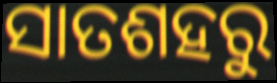
ସାତଶହରୁ